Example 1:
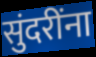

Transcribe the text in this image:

सुंदरींना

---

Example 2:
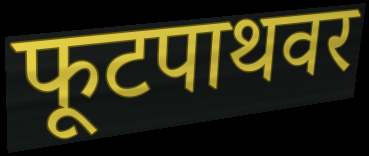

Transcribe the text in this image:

फूटपाथवर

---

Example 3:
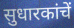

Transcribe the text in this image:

सुधारकांचें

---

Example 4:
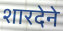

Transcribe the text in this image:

शारदेने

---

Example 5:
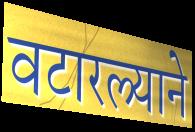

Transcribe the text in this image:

वटारल्याने